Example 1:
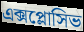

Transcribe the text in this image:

এক্সপ্লোসিভ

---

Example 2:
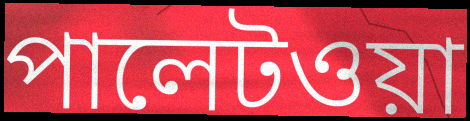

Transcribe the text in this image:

পালেটওয়া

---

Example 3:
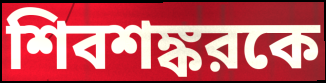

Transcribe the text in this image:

শিবশঙ্করকে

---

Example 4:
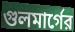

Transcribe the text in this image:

গুলমার্গের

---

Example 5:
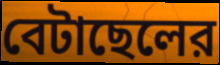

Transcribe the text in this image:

বেটাছেলের